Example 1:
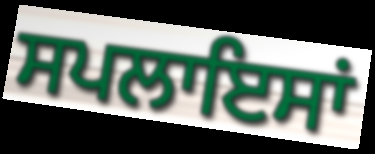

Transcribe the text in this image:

ਸਪਲਾਇਸਾਂ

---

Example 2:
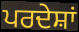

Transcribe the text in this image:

ਪਰਦੇਸ਼ਾਂ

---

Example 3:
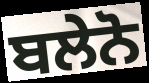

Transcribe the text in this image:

ਬਲੇਨੋ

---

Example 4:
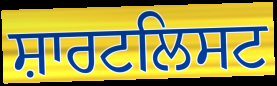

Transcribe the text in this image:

ਸ਼ਾਰਟਲਿਸਟ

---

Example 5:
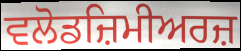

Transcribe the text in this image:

ਵਲੋਡਜ਼ਿਮੀਅਰਜ਼